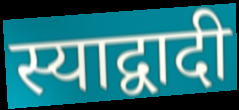
स्याद्वादी